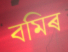
বমিৰ